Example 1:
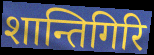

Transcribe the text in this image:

शान्तिगिरि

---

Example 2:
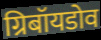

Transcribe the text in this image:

ग्रिबॉयडोव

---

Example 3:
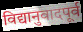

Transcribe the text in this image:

विद्यानुवादपूर्व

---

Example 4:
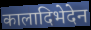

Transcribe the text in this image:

कालादिभेदेन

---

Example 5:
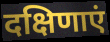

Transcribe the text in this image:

दक्षिणाएं